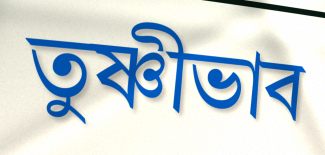
তুষ্ণীভাব